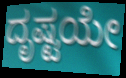
ದೃಷ್ಟಯೇ